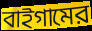
বাইগামের